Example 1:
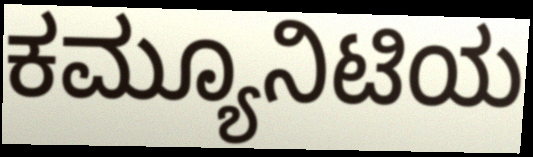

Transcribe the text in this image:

ಕಮ್ಯೂನಿಟಿಯ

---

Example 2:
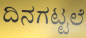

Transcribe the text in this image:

ದಿನಗಟ್ಟಲೆ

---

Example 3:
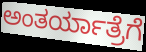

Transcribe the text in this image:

ಅಂತರ್ಯಾತ್ರೆಗೆ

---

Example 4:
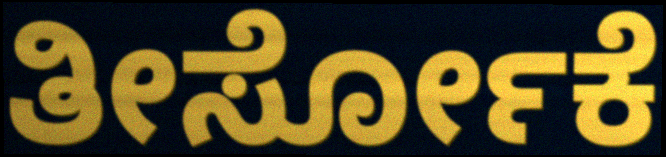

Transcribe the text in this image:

ತೀರ್ಸೋಕೆ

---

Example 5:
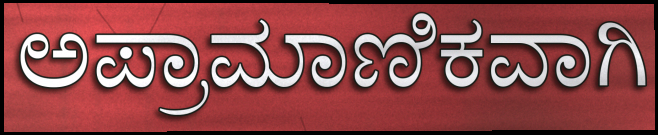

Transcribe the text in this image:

ಅಪ್ರಾಮಾಣಿಕವಾಗಿ